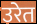
उरेत